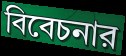
বিবেচনার